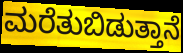
ಮರೆತುಬಿಡುತ್ತಾನೆ